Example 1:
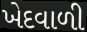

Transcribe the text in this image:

ખેદવાળી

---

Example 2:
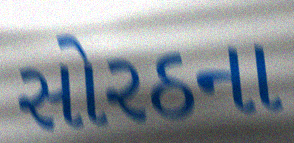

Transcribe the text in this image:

સોરઠના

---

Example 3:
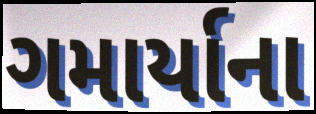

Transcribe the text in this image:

ગમાર્યાના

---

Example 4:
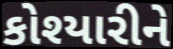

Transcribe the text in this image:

કોશ્યારીને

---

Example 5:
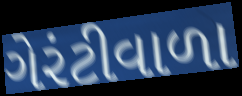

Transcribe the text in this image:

ગેરંટીવાળા